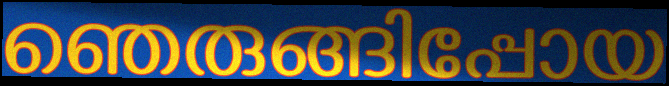
ഞെരുങ്ങിപ്പോയ